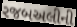
રજબઅલીની